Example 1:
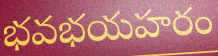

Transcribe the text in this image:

భవభయహరం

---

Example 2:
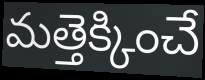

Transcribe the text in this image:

మత్తెక్కించే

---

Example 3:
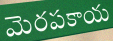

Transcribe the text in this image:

మెరపకాయ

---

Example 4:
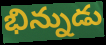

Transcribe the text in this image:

భిన్నుడు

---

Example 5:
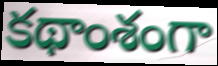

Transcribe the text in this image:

కథాంశంగా